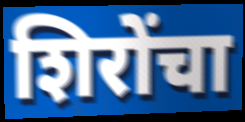
शिरोंचा